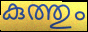
കുത്തും